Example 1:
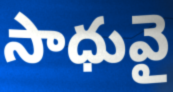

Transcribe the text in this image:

సాధువై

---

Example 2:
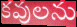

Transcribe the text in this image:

కవులను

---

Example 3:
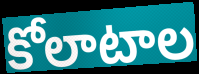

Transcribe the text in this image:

కోలాటాల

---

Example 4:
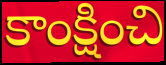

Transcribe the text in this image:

కాంక్షించి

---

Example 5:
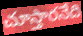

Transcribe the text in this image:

చూస్తారనేది